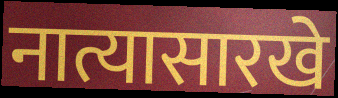
नात्यासारखे